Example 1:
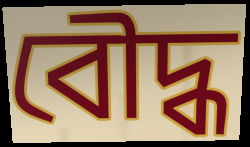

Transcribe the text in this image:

বৌদ্ধ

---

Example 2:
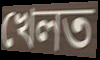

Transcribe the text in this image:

খেলত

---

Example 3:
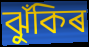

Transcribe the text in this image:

ঝুঁকিৰ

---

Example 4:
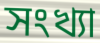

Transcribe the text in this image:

সংখ্যা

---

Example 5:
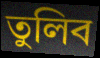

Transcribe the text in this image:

তুলিব